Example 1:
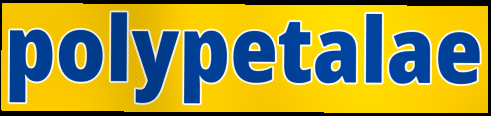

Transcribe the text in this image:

polypetalae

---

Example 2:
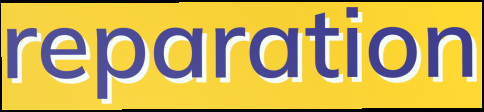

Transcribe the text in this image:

reparation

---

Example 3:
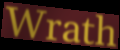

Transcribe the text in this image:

Wrath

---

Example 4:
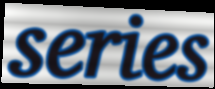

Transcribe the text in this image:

series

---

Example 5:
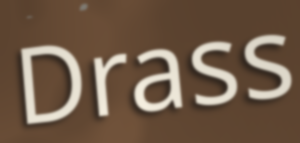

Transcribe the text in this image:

Drass